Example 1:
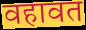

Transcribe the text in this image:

वहावत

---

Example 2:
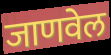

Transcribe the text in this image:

जाणवेल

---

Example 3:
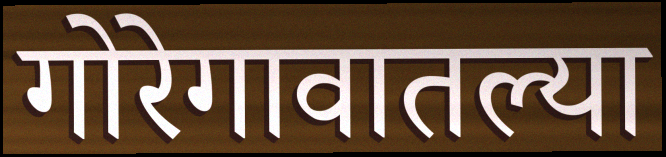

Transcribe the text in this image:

गोरेगावातल्या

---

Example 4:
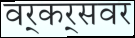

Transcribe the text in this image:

वर्कर्सवर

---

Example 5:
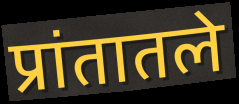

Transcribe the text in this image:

प्रांतातले